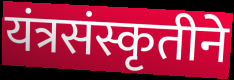
यंत्रसंस्कृतीने